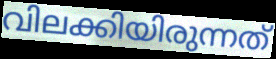
വിലക്കിയിരുന്നത്